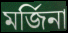
মর্জিনা